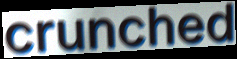
crunched